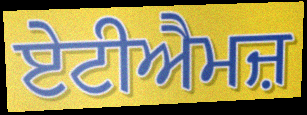
ਏਟੀਐਮਜ਼